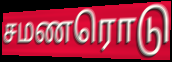
சமணரொடு